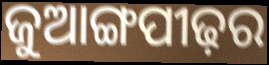
ଜୁଆଙ୍ଗପୀଢ଼ର